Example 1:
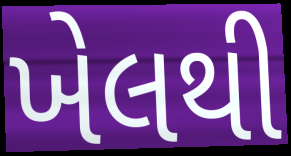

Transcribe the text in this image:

ખેલથી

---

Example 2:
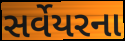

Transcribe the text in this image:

સર્વેયરના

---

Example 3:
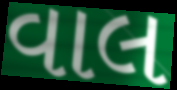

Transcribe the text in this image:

વાલ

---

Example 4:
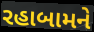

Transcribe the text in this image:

રહાબામને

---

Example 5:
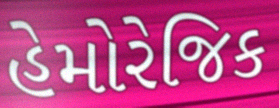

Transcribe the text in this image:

હેમોરેજિક